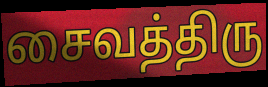
சைவத்திரு